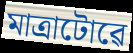
মাত্ৰাটোৱে